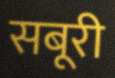
सबूरी